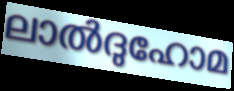
ലാൽദുഹോമ